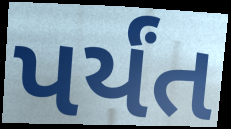
પર્યંત